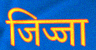
जिज्जा